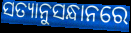
ସତ୍ୟାନୁସନ୍ଧାନରେ